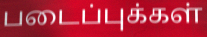
படைப்புக்கள்